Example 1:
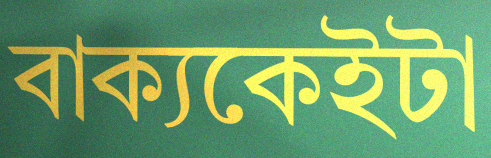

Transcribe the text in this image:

বাক্যকেইটা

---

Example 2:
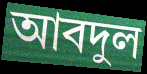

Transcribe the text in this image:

আবদুল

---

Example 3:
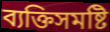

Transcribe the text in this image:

ব্যক্তিসমষ্টি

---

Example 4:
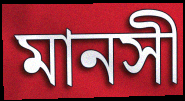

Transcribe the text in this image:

মানসী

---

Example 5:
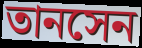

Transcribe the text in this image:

তানসেন